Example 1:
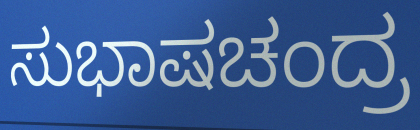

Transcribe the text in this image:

ಸುಭಾಷಚಂದ್ರ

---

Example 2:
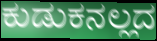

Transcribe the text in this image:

ಕುಡುಕನಲ್ಲದ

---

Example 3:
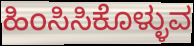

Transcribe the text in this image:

ಹಿಂಸಿಸಿಕೊಳ್ಳುವ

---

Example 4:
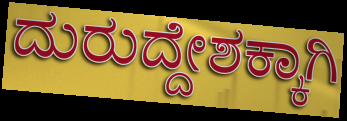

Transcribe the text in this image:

ದುರುದ್ದೇಶಕ್ಕಾಗಿ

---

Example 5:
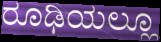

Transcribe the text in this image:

ರೂಢಿಯಲ್ಲೂ